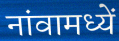
नांवामध्यें